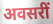
अवसरीं